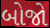
બોજો